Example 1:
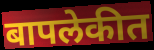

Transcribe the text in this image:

बापलेकीत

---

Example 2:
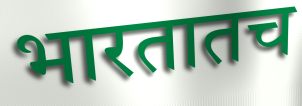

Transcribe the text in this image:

भारतातच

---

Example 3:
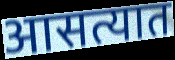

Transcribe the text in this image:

आसत्यात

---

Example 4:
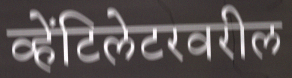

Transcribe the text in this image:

व्हेंटिलेटरवरील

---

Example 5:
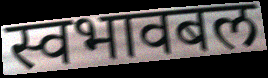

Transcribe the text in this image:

स्वभावबल